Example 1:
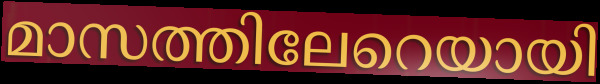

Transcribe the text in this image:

മാസത്തിലേറെയായി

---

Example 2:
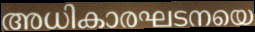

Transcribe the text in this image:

അധികാരഘടനയെ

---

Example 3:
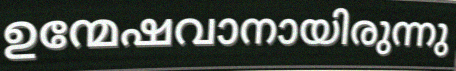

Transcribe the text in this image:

ഉന്മേഷവാനായിരുന്നു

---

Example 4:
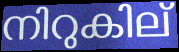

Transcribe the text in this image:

നിറുകില്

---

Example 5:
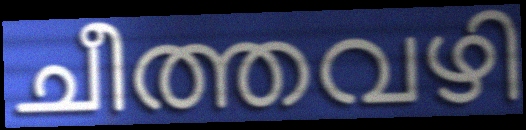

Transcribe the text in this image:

ചീത്തവഴി